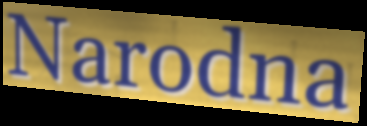
Narodna